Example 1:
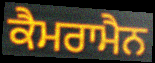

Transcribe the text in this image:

ਕੈਮਰਾਮੈਨ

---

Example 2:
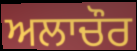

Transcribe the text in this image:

ਅਲਾਚੌਰ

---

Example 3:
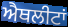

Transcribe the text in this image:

ਐਥਲੀਟਾਂ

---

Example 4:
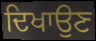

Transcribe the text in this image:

ਦਿਖਾਉਣ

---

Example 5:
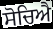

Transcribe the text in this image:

ਸੋਚਿਐ